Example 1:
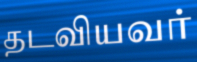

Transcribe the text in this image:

தடவியவர்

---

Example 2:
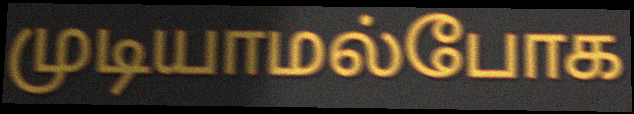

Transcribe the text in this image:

முடியாமல்போக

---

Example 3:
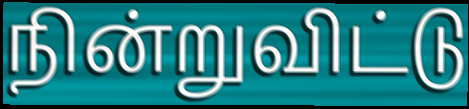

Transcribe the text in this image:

நின்றுவிட்டு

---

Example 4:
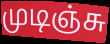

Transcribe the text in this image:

முடிஞ்சு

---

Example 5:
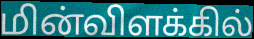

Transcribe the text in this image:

மின்விளக்கில்